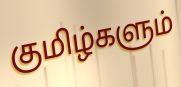
குமிழ்களும்